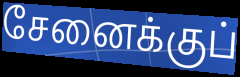
சேனைக்குப்